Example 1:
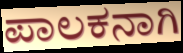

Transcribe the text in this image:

ಪಾಲಕನಾಗಿ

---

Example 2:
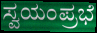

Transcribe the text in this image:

ಸ್ವಯಂಪ್ರಭೆ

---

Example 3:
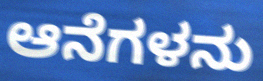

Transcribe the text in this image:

ಆನೆಗಳನು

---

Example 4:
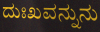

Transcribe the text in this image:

ದುಃಖವನ್ನುನು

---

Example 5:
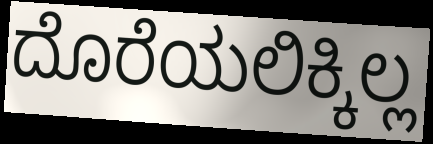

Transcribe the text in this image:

ದೊರೆಯಲಿಕ್ಕಿಲ್ಲ